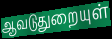
ஆவடுதுறையுள்